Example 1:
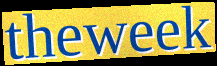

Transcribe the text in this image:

theweek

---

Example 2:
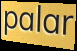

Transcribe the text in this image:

palar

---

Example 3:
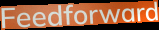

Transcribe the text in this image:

Feedforward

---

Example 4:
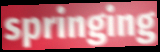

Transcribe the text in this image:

springing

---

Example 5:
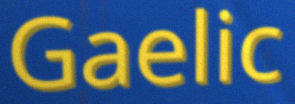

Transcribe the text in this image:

Gaelic